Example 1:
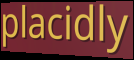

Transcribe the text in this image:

placidly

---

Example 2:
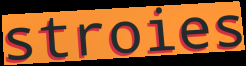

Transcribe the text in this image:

stroies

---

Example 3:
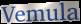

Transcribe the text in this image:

Vemula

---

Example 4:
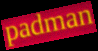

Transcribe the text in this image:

padman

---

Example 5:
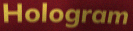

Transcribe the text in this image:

Hologram